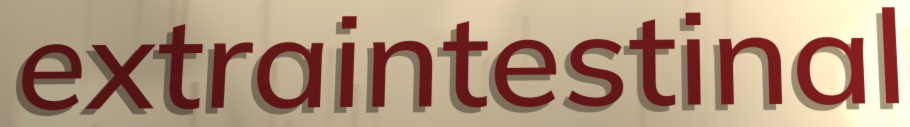
extraintestinal